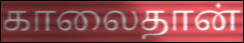
காலைதான்